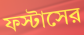
ফস্টাসের